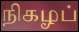
நிகழப்